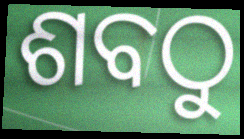
ଶବଠୁ